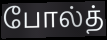
போல்த்